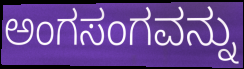
ಅಂಗಸಂಗವನ್ನು